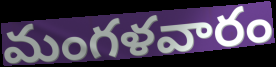
మంగళవారం